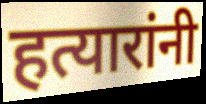
हत्यारांनी